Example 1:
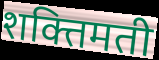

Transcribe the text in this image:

शक्तिमती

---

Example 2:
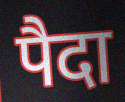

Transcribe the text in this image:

पैदा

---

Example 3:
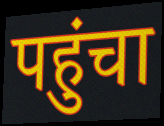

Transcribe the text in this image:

पहुंचा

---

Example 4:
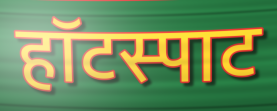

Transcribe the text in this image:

हॉटस्पाट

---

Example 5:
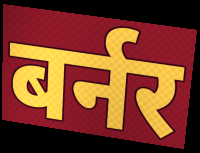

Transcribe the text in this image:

बर्नर